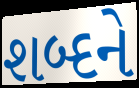
શબ્દને